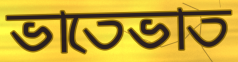
ভাতেভাত